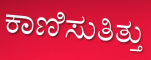
ಕಾಣಿಸುತಿತ್ತು